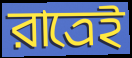
রাত্রেই